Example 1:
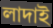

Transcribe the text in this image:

লাদাই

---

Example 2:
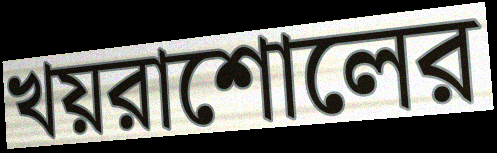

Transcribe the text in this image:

খয়রাশোলের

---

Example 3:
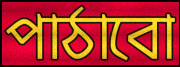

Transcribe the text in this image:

পাঠাবো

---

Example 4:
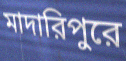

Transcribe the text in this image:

মাদারিপুরে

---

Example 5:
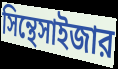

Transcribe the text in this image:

সিন্থেসাইজার